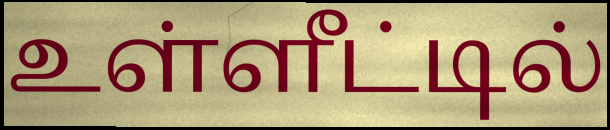
உள்ளீட்டில்